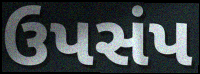
ઉપસંપ